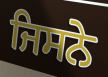
ਜਿਸਨੇ